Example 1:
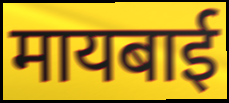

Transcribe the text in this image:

मायबाई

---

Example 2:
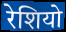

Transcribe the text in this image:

रेशियो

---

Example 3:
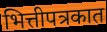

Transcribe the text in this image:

भित्तीपत्रकात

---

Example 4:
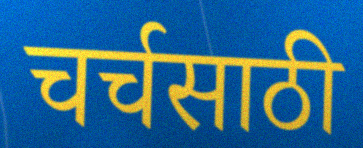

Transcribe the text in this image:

चर्चसाठी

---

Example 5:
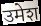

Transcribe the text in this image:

उमेश